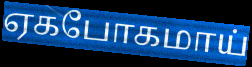
ஏகபோகமாய்